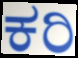
ಕರಿ